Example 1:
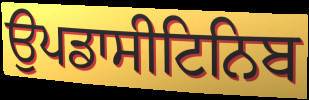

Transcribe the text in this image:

ਉਪਡਾਸੀਟਿਨਿਬ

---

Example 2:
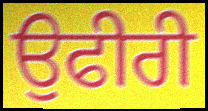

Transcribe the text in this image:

ਉਫੀਰੀ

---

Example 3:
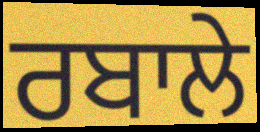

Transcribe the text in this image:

ਰਬਾਲੇ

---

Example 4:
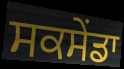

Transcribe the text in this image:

ਸਕਸੇਂਡਾ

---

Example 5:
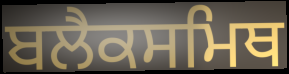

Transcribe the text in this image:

ਬਲੈਕਸਮਿਥ